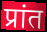
प्रांत